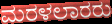
ಮರಳಲಾರರು